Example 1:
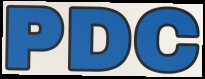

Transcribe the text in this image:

PDC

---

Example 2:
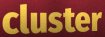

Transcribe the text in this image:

cluster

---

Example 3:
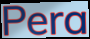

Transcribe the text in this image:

Pera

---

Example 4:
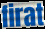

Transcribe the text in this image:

firat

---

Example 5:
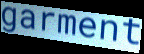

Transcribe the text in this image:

garment